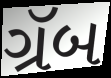
ગ્રૅબ